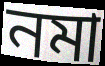
নমা